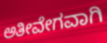
ಅತೀವೇಗವಾಗಿ